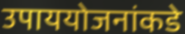
उपाययोजनांकडे